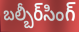
బల్బీర్‌సింగ్